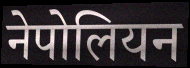
नेपोलियन